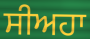
ਸੀਅਹਾ